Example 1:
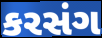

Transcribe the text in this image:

કરસંગ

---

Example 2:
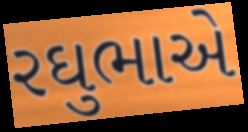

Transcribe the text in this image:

રઘુભાએ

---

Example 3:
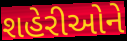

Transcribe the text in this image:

શહેરીઓને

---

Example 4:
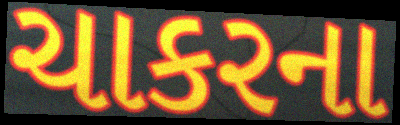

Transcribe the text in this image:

ચાકરના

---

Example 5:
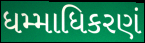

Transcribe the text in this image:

ધમ્માધિકરણં